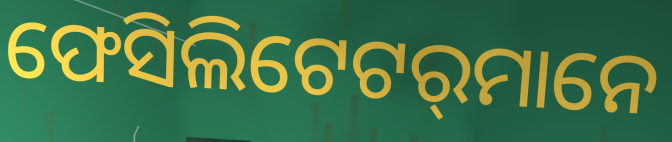
ଫେସିଲିଟେଟର୍‌ମାନେ